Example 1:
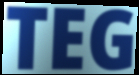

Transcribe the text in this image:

TEG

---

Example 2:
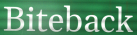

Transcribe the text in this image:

Biteback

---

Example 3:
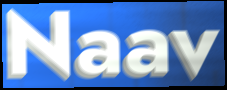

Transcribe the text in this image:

Naav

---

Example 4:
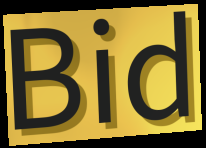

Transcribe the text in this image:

Bid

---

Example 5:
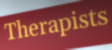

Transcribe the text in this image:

Therapists